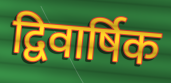
द्विवार्षिक